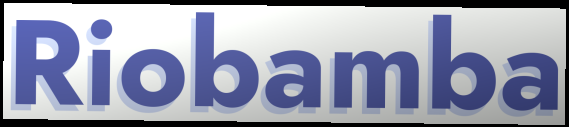
Riobamba